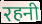
रहनी